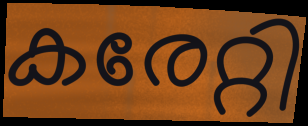
കരേറ്റി